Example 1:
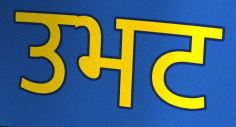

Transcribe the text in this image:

उभट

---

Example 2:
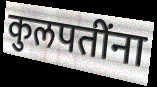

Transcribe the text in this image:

कुलपतींना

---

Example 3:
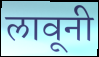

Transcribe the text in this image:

लावूनी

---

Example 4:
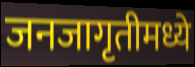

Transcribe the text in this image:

जनजागृतीमध्ये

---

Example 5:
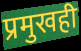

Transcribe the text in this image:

प्रमुखही